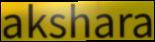
akshara